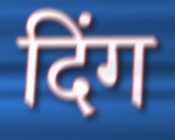
दिंग